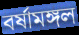
বর্ষামঙ্গল